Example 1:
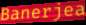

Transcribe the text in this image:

Banerjea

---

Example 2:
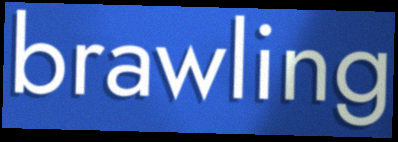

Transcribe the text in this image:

brawling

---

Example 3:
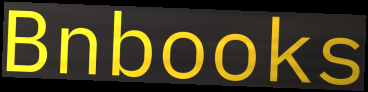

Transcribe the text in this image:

Bnbooks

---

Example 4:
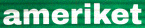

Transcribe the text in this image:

ameriket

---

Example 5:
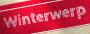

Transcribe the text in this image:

Winterwerp